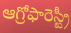
ఆగ్రోఫారెస్ట్రీ